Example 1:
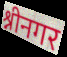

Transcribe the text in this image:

श्नीनगर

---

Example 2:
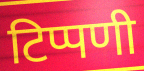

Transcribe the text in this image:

टिप्पणी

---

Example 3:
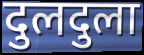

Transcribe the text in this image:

दुलदुला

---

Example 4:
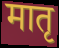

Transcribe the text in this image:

मातृ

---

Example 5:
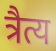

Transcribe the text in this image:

त्रैत्य